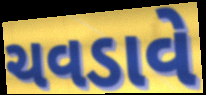
ચવડાવે